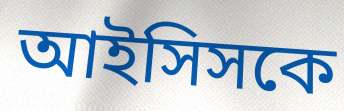
আইসিসকে